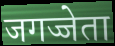
जगज्जेता